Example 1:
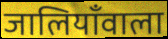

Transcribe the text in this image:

जालियाँवाला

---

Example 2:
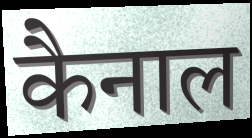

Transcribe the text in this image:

कैनाल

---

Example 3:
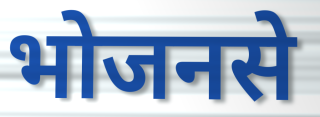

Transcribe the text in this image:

भोजनसे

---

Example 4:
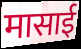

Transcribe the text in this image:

मासाई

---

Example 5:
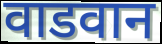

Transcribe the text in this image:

वाडवान